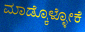
ಮಾಡ್ಕೊಳ್ಳೋಕೆ